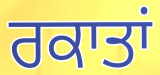
ਰਕਾਤਾਂ